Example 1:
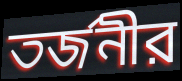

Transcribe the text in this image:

তর্জনীর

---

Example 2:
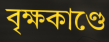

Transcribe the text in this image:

বৃক্ষকাণ্ডে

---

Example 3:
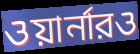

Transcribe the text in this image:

ওয়ার্নারও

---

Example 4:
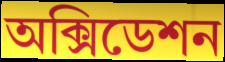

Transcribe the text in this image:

অক্সিডেশন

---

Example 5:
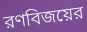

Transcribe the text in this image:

রণবিজয়ের